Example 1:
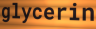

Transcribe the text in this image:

glycerin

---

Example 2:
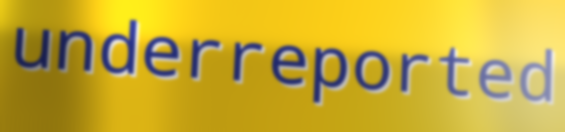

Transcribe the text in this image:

underreported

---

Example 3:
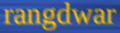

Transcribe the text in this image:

rangdwar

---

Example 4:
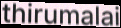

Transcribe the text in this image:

thirumalai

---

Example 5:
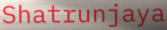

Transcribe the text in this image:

Shatrunjaya